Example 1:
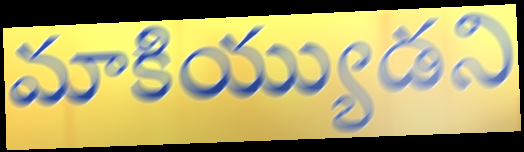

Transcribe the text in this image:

మాకియ్యుడని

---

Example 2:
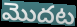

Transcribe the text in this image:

మొదట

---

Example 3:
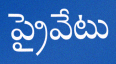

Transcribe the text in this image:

ప్రైవేటు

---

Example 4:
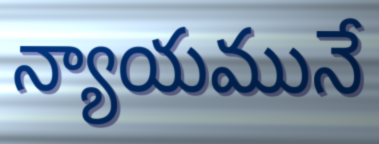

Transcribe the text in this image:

న్యాయమునే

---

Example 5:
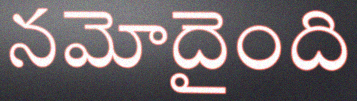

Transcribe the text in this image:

నమోదైంది